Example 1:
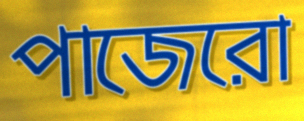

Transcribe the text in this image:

পাজেরো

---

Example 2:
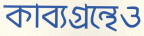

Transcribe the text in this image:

কাব্যগ্রন্থেও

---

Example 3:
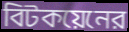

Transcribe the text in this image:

বিটকয়েনের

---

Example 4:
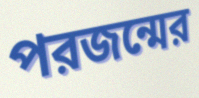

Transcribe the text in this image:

পরজন্মের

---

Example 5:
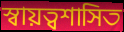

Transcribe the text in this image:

স্বায়ত্বশাসিত